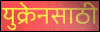
युक्रेनसाठी